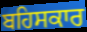
ਬਹਿਸਕਾਰ